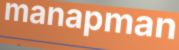
manapman